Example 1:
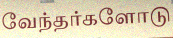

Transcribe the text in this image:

வேந்தர்களோடு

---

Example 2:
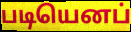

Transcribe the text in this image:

படியெனப்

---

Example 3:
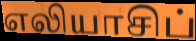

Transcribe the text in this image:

எலியாசிப்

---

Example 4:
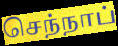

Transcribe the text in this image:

செந்நாப்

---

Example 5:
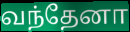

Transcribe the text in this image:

வந்தேனா